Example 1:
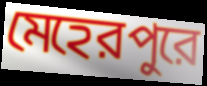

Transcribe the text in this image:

মেহেরপুরে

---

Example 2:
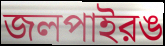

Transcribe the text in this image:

জলপাইরঙ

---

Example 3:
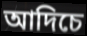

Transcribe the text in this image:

আদিচে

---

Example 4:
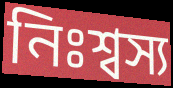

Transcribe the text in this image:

নিঃশ্বস্য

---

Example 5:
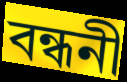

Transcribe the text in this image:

বন্ধনী